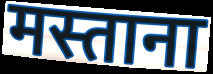
मस्ताना